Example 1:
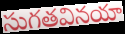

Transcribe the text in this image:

సుగతవినయా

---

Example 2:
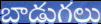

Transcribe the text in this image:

బాడుగలు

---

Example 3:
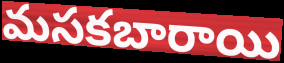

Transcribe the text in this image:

మసకబారాయి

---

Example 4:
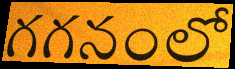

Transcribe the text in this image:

గగనంలో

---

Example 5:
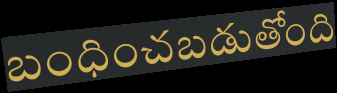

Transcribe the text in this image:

బంధించబడుతోంది